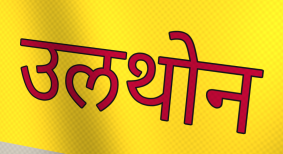
उलथोन